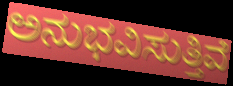
ಅನುಭವಿಸುತ್ತಿವೆ